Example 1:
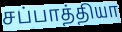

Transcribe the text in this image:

சப்பாத்தியா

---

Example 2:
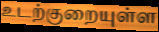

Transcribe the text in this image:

உடற்குறையுள்ள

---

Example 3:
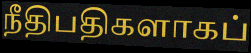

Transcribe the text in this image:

நீதிபதிகளாகப்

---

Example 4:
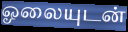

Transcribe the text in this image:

ஓலையுடன்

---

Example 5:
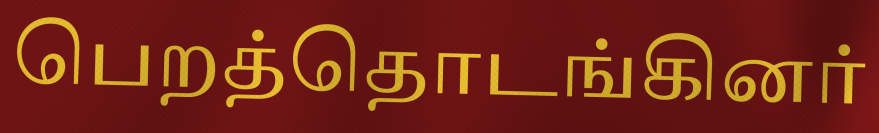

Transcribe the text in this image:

பெறத்தொடங்கினர்